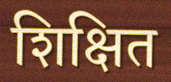
शिक्षित